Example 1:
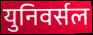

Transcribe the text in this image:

युनिवर्सल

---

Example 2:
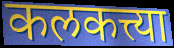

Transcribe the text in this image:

कलकत्त्या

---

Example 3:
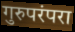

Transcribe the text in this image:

गुरुपरंपरा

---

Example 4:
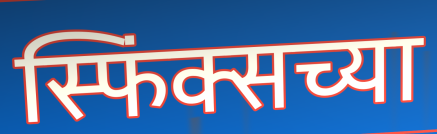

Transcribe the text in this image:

स्फिंक्सच्या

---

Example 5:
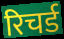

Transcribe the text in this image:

रिचर्ड